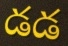
డడ